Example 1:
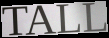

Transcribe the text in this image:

TALL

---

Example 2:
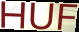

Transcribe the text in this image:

HUF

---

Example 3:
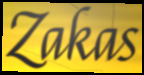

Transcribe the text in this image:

Zakas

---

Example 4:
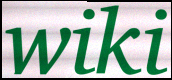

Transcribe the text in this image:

wiki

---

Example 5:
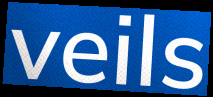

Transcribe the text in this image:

veils